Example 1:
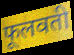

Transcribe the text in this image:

फूलवती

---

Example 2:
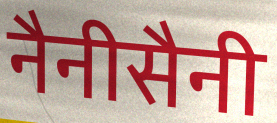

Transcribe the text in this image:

नैनीसैनी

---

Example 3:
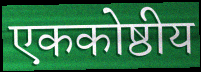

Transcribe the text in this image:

एककोष्ठीय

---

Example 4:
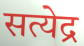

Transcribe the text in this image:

सत्येद्र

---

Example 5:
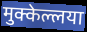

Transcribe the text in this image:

मुक्केल्लया